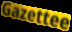
Gazettee